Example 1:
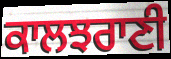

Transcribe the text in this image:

ਕਾਲਝਰਾਣੀ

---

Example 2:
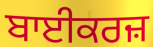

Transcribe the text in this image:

ਬਾਈਕਰਜ਼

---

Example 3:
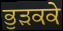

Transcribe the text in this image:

ਭੁੜਕਕੇ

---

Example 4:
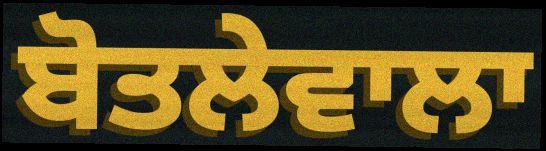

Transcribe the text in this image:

ਬੋਤਲੇਵਾਲਾ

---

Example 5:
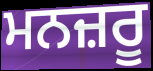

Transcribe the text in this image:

ਮਨਜ਼ਰੂ